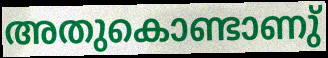
അതുകൊണ്ടാണു്